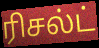
ரிசல்ட்